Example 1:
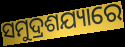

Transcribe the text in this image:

ସମୁଦ୍ରଶଯ୍ୟାରେ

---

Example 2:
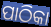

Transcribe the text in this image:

ପାଠିକା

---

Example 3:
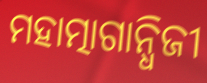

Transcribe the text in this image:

ମହାତ୍ମାଗାନ୍ଧିଜୀ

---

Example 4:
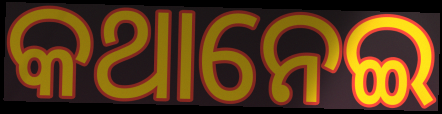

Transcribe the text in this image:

କଥାନେଇ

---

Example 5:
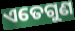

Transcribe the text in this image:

ଏତେଗୁଣ